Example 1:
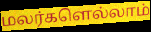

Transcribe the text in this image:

மலர்களெல்லாம்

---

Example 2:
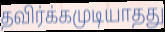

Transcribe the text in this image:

தவிர்க்கமுடியாதது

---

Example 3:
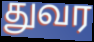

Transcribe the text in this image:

துவர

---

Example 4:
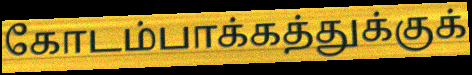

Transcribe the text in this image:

கோடம்பாக்கத்துக்குக்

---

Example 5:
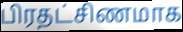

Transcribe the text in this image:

பிரதட்சிணமாக